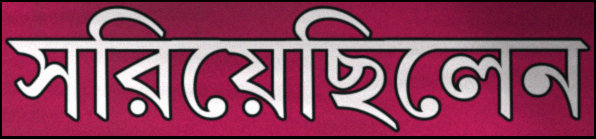
সরিয়েছিলেন